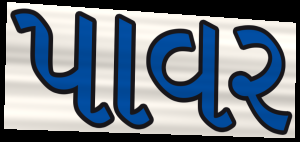
પાવર